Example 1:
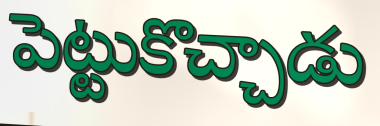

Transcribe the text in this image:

పెట్టుకొచ్చాడు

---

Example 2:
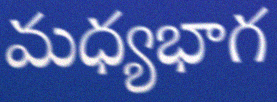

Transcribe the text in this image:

మధ్యభాగ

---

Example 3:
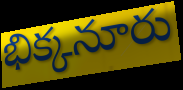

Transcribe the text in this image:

భిక్కనూరు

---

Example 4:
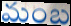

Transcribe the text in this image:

మంబ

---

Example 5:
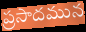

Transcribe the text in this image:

ప్రసాదమున